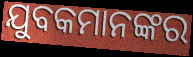
ଯୁବକମାନଙ୍କର